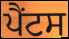
ਪੈਂਟਸ